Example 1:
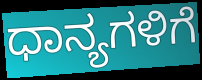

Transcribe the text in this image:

ಧಾನ್ಯಗಳಿಗೆ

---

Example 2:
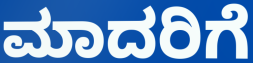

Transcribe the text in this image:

ಮಾದರಿಗೆ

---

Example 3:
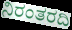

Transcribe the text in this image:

ನಿರಂತರದಿ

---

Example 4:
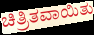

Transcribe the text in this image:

ಚಿತ್ರಿತವಾಯಿತು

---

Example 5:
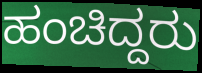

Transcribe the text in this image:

ಹಂಚಿದ್ದರು